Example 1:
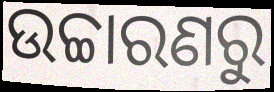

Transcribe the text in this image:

ଉଚ୍ଚାରଣରୁ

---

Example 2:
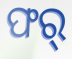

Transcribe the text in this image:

ଫର୍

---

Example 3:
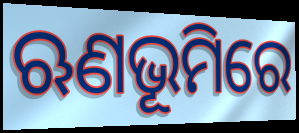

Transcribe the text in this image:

ଋଣଭୂମିରେ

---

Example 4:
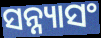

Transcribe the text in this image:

ସନ୍ନ୍ୟାସଂ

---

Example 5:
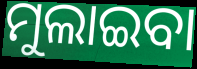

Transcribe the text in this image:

ମୁଲାଇବା